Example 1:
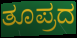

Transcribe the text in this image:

ತೂಪ್ರದ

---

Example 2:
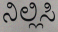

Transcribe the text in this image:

ನಿಲ್ಲಿಸಿ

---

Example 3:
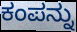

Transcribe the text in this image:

ಕಂಪನ್ನು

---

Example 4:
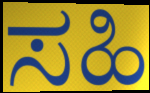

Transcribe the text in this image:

ಸಹಿ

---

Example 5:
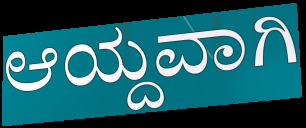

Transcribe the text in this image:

ಆಯ್ದವಾಗಿ